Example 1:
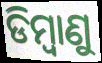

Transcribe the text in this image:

ଡିମ୍ବାଣୁ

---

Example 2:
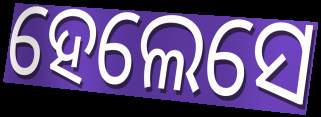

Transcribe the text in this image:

ହେଲେସେ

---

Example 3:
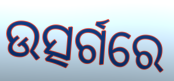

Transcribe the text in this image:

ଉତ୍ସର୍ଗରେ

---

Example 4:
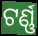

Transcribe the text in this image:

ଟର୍ଣ୍ଣ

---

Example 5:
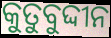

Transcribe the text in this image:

କୁତୁବୁଦ୍ଦୀନ